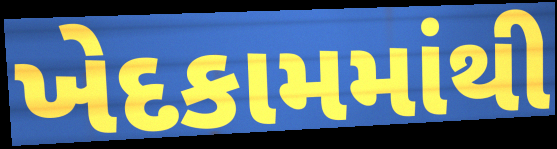
ખેદકામમાંથી